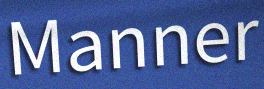
Manner